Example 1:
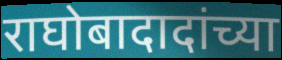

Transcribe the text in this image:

राघोबादादांच्या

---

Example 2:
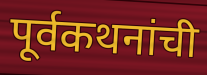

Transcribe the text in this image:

पूर्वकथनांची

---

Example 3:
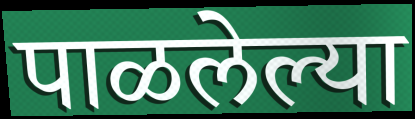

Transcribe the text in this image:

पाळलेल्या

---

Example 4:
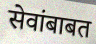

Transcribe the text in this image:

सेवांबाबत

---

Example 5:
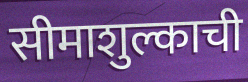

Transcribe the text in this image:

सीमाशुल्काची